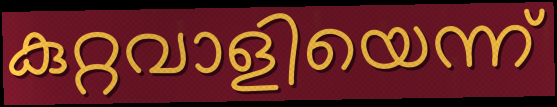
കുറ്റവാളിയെന്ന്